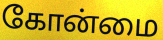
கோன்மை